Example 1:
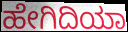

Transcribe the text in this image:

ಹೇಗಿದಿಯಾ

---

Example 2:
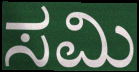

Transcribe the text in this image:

ಸಮಿ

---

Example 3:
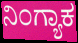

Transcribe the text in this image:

ನಿಂಗ್ಯಾಕ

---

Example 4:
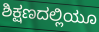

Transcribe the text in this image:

ಶಿಕ್ಷಣದಲ್ಲಿಯೂ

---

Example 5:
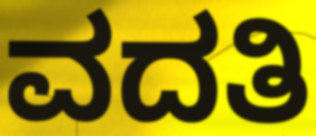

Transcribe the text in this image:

ವದತಿ